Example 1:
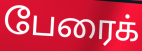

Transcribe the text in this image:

பேரைக்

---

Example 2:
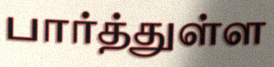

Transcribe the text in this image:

பார்த்துள்ள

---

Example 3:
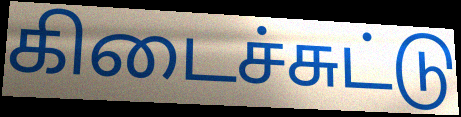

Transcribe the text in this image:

கிடைச்சுட்டு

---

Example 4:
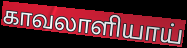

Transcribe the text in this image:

காவலாளியாய்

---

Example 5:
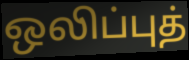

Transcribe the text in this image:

ஒலிப்புத்